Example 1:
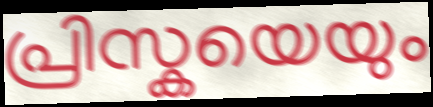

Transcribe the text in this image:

പ്രിസ്കയെയും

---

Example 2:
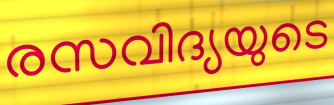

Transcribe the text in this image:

രസവിദ്യയുടെ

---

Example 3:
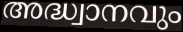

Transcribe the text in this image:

അദ്ധ്വാനവും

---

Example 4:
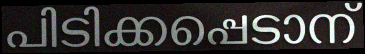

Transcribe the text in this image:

പിടിക്കപ്പെടാന്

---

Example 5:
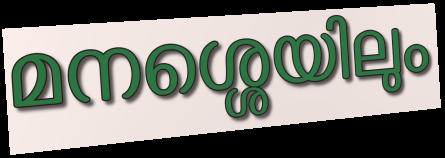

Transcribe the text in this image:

മനശ്ശെയിലും